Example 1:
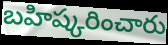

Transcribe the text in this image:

బహిష్కరించారు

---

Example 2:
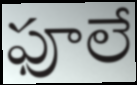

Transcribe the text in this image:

ఫూలే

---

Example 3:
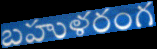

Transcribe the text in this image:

బహుళరంగ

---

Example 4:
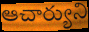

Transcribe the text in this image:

ఆచార్యుని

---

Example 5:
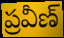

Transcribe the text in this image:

ప్రవీణ్